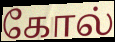
கோல்